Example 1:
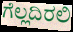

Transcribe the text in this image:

ಗೆಲ್ಲದಿರಲಿ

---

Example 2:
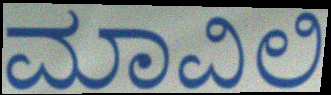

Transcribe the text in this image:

ಮಾವಿಲಿ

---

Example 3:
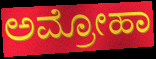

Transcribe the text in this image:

ಅಮ್ರೋಹಾ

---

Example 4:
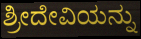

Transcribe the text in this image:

ಶ್ರೀದೇವಿಯನ್ನು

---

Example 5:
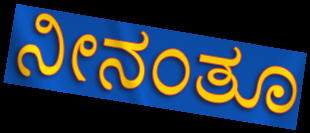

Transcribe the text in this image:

ನೀನಂತೂ